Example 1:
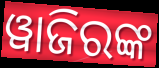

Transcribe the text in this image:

ୱାଜିରଙ୍କ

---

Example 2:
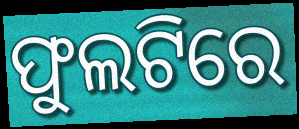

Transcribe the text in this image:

ଫୁଲଟିରେ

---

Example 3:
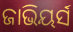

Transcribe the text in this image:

ଜାଭିୟର୍ସ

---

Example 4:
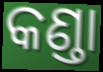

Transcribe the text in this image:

କଣ୍ଡା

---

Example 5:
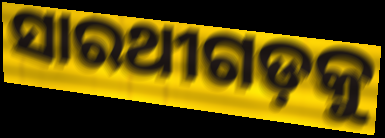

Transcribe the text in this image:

ସାରଥୀଗଡ଼କୁ